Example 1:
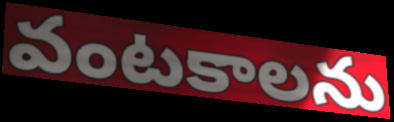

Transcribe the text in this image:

వంటకాలను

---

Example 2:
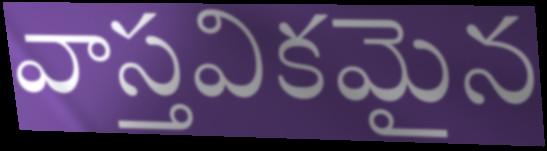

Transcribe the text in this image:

వాస్తవికమైన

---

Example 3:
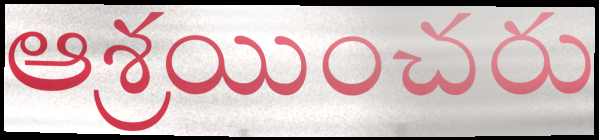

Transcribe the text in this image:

ఆశ్రయించరు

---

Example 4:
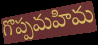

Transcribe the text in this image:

గొప్పమహిమ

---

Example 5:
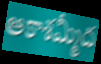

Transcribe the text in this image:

ఆకాశమ్మీద